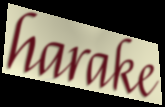
harake